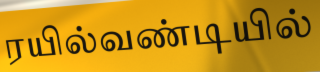
ரயில்வண்டியில்